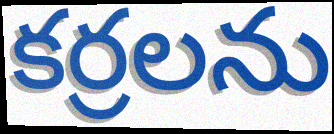
కర్రలను